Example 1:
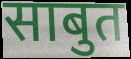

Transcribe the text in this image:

साबुत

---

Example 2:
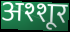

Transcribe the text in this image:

अश्शूर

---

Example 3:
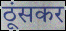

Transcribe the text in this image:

ठूंसकर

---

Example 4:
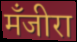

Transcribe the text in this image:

मँजीरा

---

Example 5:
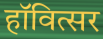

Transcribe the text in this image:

हॉवित्सर